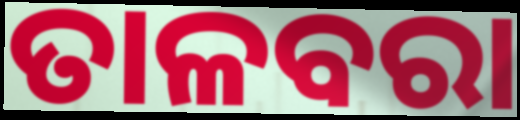
ତାଳବରା